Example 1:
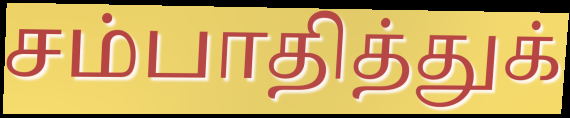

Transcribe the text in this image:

சம்பாதித்துக்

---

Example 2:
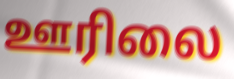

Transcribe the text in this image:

ஊரிலை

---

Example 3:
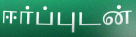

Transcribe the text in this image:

ஈர்ப்புடன்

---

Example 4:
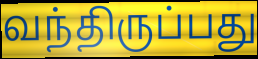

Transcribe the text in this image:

வந்திருப்பது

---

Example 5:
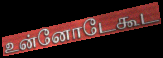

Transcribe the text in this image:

உன்னோடேகூட